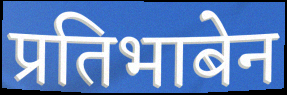
प्रतिभाबेन